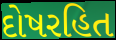
દોષરહિત